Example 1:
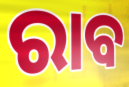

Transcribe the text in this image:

ରାବ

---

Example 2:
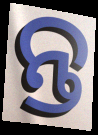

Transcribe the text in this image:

ନ୍ତ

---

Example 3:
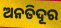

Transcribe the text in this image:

ଅନତିଦୂର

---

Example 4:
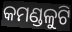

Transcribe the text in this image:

କମଣ୍ଡଳୁଟି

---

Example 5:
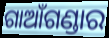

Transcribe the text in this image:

ଗାଆଁଗଣ୍ଡାର